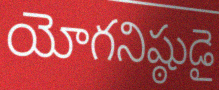
యోగనిష్ఠుడై